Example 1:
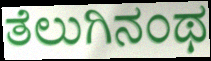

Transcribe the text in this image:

ತೆಲುಗಿನಂಥ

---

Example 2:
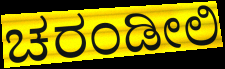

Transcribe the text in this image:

ಚರಂಡೀಲಿ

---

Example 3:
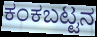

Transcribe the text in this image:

ಕಂಕಬಟ್ಟನ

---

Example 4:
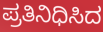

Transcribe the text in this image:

ಪ್ರತಿನಿಧಿಸಿದ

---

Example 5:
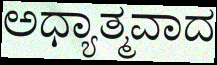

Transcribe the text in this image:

ಅಧ್ಯಾತ್ಮವಾದ